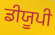
ਡੀਯੂਪੀ